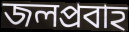
জলপ্ৰবাহ